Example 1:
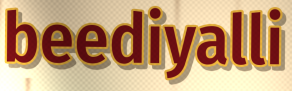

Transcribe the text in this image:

beediyalli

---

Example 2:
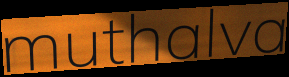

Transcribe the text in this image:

muthalva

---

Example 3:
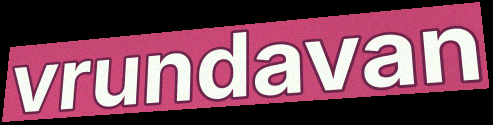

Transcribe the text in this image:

vrundavan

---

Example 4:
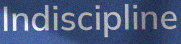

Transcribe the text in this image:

Indiscipline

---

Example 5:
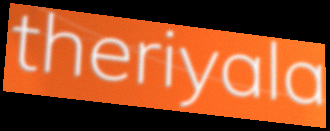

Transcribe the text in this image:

theriyala